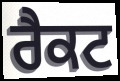
ਰੈਕਟ